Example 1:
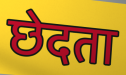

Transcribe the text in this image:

छेदता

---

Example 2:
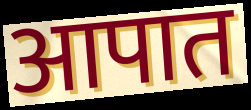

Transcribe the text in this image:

आपात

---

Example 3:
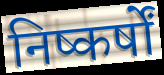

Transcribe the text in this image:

निष्कर्षों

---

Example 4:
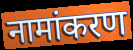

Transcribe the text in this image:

नामांकरण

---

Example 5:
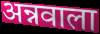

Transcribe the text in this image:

अन्नवाला